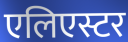
एलिएस्टर